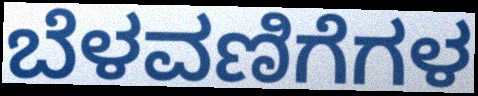
ಬೆಳವಣಿಗೆಗಳ